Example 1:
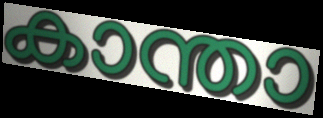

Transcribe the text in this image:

കാന്താ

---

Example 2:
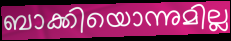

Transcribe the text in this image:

ബാക്കിയൊന്നുമില്ല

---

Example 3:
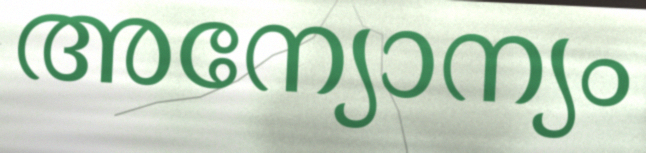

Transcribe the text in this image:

അന്യോന്യം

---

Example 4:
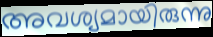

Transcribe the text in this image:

അവശ്യമായിരുന്നു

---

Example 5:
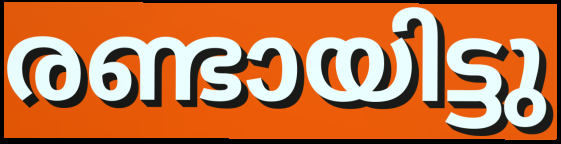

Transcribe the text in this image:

രണ്ടായിട്ടു